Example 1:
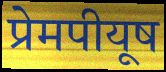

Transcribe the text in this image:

प्रेमपीयूष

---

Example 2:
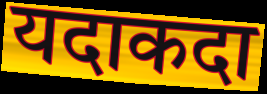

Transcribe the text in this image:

यदाकदा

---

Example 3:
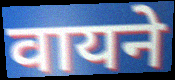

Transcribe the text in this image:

वायने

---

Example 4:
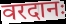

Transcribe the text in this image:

वरदानः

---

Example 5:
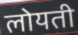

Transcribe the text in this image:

लोयती